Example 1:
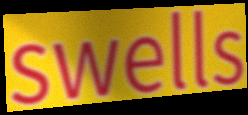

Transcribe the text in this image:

swells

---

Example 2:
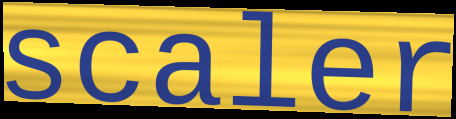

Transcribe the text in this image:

scaler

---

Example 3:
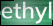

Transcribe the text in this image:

ethyl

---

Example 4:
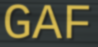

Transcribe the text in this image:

GAF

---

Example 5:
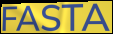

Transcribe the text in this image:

FASTA